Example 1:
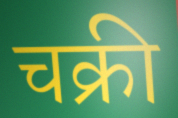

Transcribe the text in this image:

चक्री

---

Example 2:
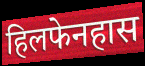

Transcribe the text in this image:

हिलफेनहास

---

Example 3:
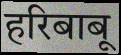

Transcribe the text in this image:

हरिबाबू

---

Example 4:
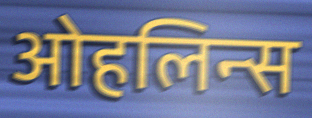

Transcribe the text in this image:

ओहलिन्स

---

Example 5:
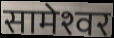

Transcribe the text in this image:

सामेश्वर